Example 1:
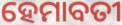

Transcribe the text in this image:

ହେମାବତୀ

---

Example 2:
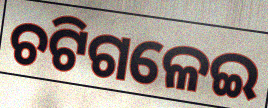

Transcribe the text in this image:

ଚଟିଗଳେଇ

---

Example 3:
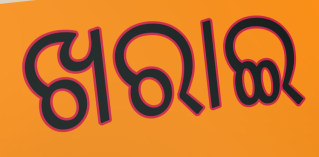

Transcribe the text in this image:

ଖରାଇ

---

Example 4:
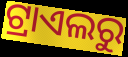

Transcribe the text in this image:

ଟ୍ରାଏଲରୁ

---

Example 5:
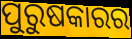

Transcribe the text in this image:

ପୁରୁଷକାରର